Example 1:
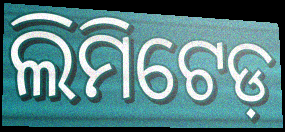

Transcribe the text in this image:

ଲିମିଟେଡ଼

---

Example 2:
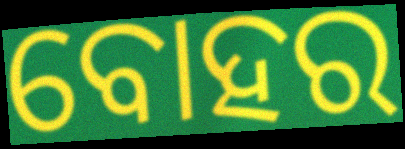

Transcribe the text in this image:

ବୋହର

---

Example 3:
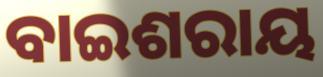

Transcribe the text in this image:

ବାଇଶରାୟ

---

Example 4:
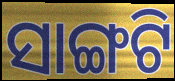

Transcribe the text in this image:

ସାଙ୍ଗଟି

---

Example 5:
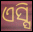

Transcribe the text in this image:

ଏସ୍ସି